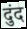
दुंद